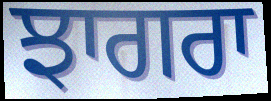
ਝਾਗਰਾ